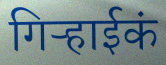
गिऱ्हाईकं